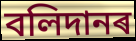
বলিদানৰ